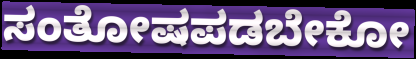
ಸಂತೋಷಪಡಬೇಕೋ